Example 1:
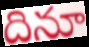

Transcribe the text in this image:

దినూ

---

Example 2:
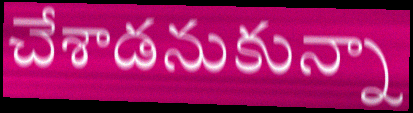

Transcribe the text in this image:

చేశాడనుకున్నా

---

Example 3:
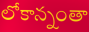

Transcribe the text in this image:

లోకాన్నంతా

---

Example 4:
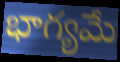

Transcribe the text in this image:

భాగ్యమే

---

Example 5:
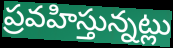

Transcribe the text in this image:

ప్రవహిస్తున్నట్లు